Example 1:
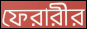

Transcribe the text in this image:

ফেরারীর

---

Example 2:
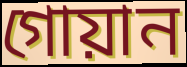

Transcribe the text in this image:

গোয়ান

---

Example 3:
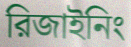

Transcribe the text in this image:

রিজাইনিং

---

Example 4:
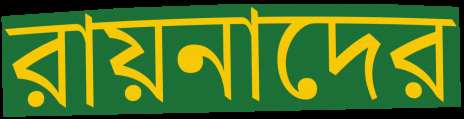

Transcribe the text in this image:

রায়নাদের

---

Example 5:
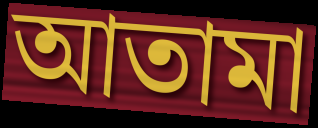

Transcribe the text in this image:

আতামা